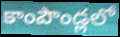
కాంపౌండ్లలో